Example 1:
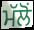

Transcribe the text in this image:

ਮੱਲੋਂ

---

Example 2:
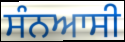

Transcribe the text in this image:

ਸੰਨਆਸੀ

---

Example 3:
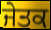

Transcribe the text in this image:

ਜੇਤਕ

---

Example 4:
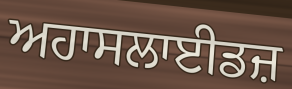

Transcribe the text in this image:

ਅਹਾਸਲਾਈਡਜ਼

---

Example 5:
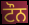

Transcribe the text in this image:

ਟੌਨ